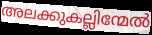
അലക്കുകല്ലിന്മേൽ